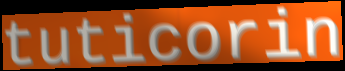
tuticorin